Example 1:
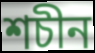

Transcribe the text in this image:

শচীন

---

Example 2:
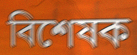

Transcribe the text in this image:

বিশেষক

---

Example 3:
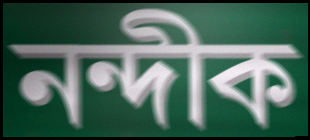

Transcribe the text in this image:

নন্দীক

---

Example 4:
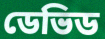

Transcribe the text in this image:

ডেভিড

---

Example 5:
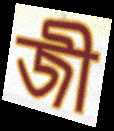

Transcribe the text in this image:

জী